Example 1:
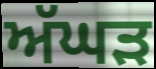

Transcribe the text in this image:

ਅੱਘੜ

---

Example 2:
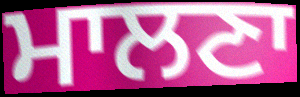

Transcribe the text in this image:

ਮਾਲਣਾ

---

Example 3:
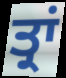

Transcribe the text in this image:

ਤ੍ਰਾਂ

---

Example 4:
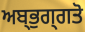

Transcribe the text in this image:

ਅਬ੍ਭੁਗ੍ਗਤੋ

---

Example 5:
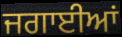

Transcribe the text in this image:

ਜਗਾਈਆਂ